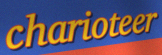
charioteer